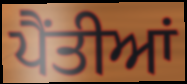
ਪੈਂਤੀਆਂ